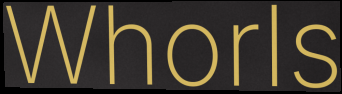
Whorls